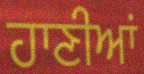
ਹਾਣੀਆਂ